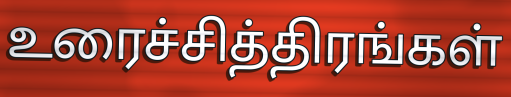
உரைச்சித்திரங்கள்